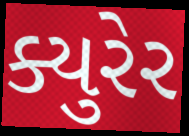
ક્યુરેર